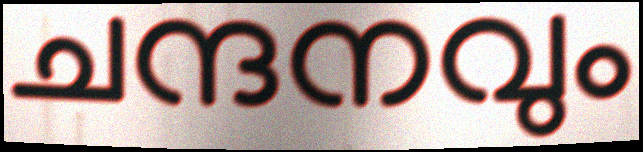
ചന്ദനവും